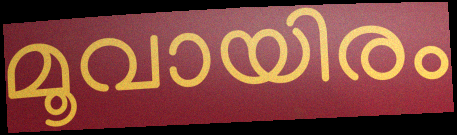
മൂവായിരം